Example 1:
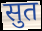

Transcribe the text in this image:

सुत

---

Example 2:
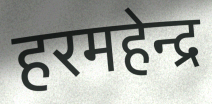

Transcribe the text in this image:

हरमहेन्द्र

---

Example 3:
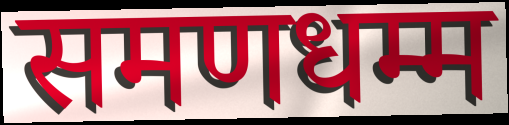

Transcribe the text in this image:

समणधम्म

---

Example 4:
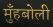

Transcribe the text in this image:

मुँहबोली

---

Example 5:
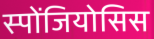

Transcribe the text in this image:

स्पोंजियोसिस